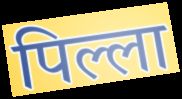
पिल्ला